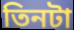
তিনটা